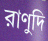
রাণুদি